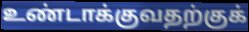
உண்டாக்குவதற்குக்